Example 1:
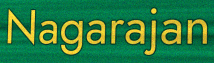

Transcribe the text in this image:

Nagarajan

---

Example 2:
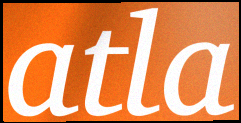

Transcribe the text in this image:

atla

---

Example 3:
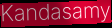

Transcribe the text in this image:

Kandasamy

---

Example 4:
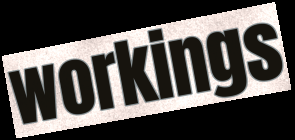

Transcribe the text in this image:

workings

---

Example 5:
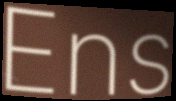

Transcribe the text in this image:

Ens